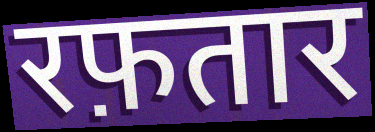
रफ़तार